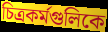
চিত্রকর্মগুলিকে